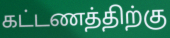
கட்டணத்திற்கு